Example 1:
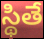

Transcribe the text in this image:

స్థితే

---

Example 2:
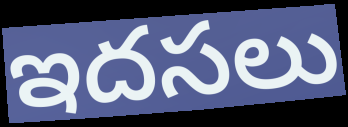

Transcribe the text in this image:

ఇదసలు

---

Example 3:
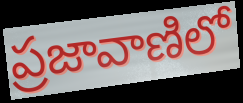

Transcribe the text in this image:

ప్రజావాణిలో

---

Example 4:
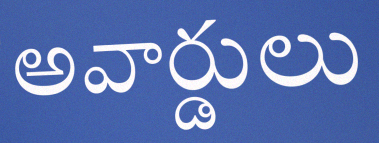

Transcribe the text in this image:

అవార్డులు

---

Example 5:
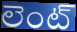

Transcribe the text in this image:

లెంట్